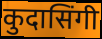
कुदासिंगी